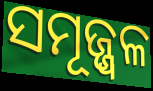
ସମୂଜ୍ଜ୍ୱଳ